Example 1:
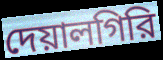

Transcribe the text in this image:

দেয়ালগিরি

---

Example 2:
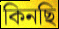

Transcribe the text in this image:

কিনছি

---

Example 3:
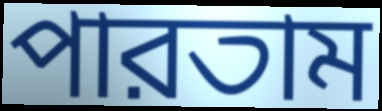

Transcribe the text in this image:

পারতাম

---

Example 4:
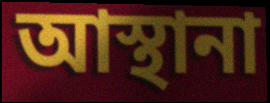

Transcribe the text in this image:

আস্থানা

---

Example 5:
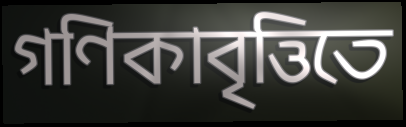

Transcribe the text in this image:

গণিকাবৃত্তিতে